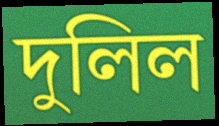
দুলিল